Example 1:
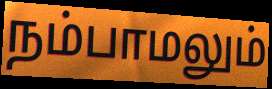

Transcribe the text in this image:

நம்பாமலும்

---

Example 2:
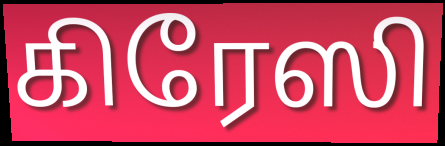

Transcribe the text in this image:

கிரேஸி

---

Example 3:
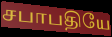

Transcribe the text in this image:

சபாபதியே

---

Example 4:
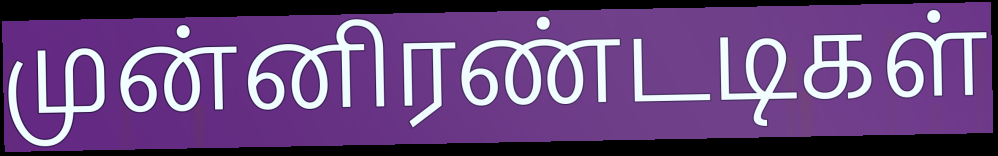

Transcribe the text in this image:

முன்னிரண்டடிகள்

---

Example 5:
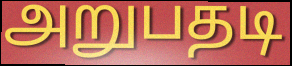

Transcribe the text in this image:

அறுபதடி